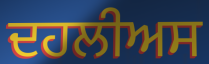
ਦਹਲੀਅਸ